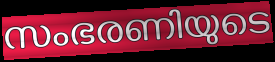
സംഭരണിയുടെ